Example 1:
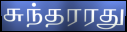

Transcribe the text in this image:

சுந்தரரது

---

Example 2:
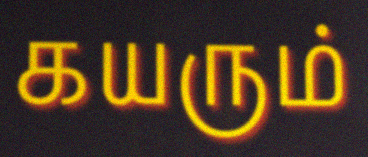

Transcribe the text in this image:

கயரும்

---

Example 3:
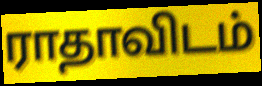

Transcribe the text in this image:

ராதாவிடம்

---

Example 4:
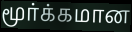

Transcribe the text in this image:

மூர்க்கமான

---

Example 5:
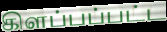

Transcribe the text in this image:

கிளப்பப்பட்ட